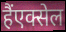
हैंएक्सेल